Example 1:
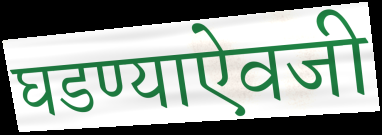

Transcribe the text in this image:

घडण्याऐवजी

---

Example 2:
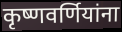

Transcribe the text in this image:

कृष्णवर्णियांना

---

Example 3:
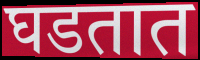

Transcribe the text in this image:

घडतात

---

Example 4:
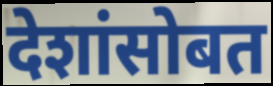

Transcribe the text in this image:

देशांसोबत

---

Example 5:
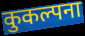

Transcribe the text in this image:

कुकल्पना